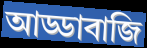
আড্ডাবাজি